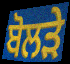
ਬੋਲੜੇ